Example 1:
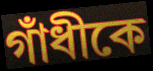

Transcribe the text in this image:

গাঁধীকে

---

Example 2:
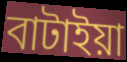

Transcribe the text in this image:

বাটাইয়া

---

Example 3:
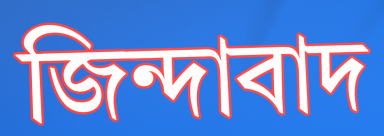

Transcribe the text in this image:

জিন্দাবাদ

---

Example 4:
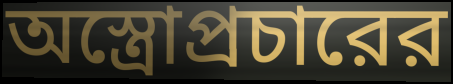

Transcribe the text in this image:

অস্ত্রোপ্রচারের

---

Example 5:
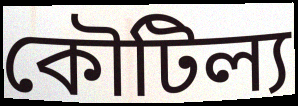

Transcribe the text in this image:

কৌটিল্য